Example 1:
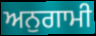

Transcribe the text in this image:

ਅਨੁਗਾਮੀ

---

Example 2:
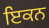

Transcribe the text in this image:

ਇਕਨ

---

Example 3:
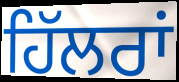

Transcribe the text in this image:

ਹਿੱਲਰਾਂ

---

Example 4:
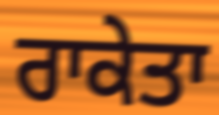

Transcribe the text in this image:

ਰਾਕੇਤਾ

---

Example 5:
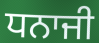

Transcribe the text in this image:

ਧਨਾਜੀ